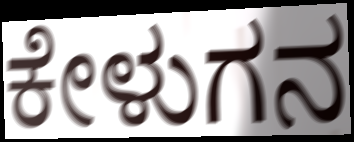
ಕೇಳುಗನ